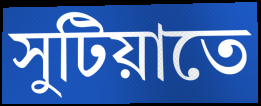
সুটিয়াতে